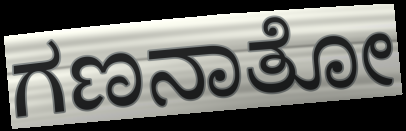
ಗಣನಾತೋ